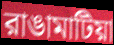
রাঙামাটিয়া